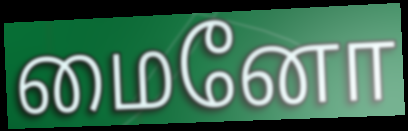
மைனோ